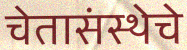
चेतासंस्थेचे